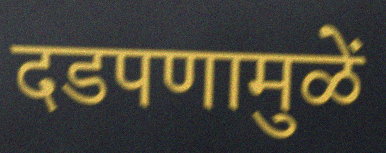
दडपणामुळें